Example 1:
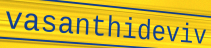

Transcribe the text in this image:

vasanthideviv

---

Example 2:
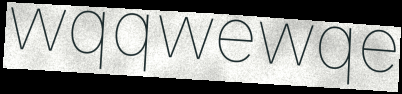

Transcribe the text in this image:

wqqwewqe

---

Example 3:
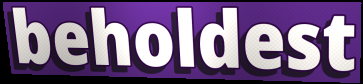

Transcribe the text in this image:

beholdest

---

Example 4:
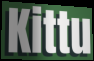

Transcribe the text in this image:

Kittu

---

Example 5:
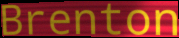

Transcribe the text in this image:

Brenton